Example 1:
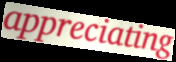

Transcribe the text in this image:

appreciating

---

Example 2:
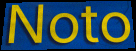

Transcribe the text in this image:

Noto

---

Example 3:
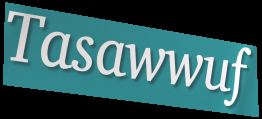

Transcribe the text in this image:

Tasawwuf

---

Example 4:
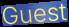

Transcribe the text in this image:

Guest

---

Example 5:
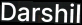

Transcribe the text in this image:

Darshil